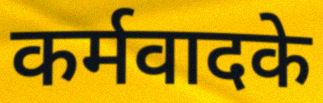
कर्मवादके